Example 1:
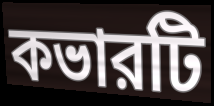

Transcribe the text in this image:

কভারটি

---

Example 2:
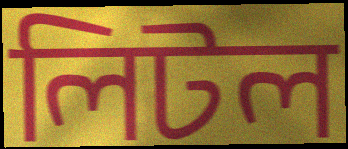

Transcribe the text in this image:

লিটল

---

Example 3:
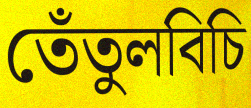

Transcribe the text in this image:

তেঁতুলবিচি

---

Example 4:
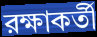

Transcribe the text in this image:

রক্ষাকর্তী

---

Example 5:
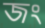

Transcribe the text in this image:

জং